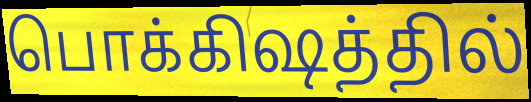
பொக்கிஷத்தில்